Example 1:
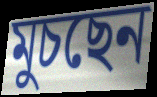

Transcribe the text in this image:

মুচছেন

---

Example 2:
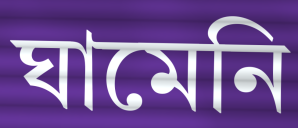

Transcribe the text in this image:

ঘামেনি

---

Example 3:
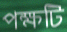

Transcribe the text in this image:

পক্ষটি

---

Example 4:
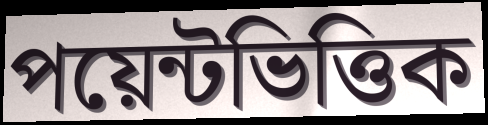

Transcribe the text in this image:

পয়েন্টভিত্তিক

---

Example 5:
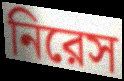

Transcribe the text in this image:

নিরেস